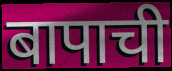
बापाची